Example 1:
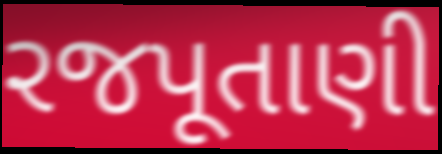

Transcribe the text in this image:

રજપૂતાણી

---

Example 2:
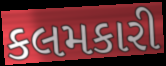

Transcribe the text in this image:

કલમકારી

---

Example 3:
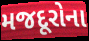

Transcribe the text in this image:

મજદૂરોના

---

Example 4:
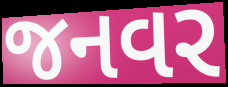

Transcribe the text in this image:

જનવર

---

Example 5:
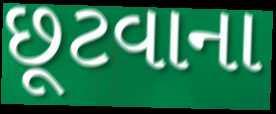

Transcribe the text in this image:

છૂટવાના